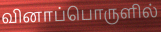
வினாப்பொருளில்